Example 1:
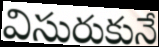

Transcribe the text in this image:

విసురుకునే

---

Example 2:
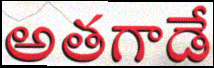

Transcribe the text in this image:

అతగాడే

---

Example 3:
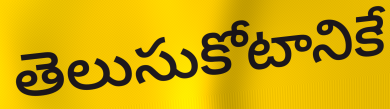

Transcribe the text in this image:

తెలుసుకోటానికే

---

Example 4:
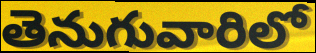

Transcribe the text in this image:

తెనుగువారిలో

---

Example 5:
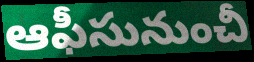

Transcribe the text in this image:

ఆఫీసునుంచీ